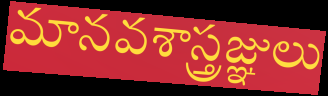
మానవశాస్త్రజ్ఞులు